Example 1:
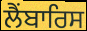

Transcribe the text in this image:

ਲੈਂਬਾਰਿਸ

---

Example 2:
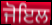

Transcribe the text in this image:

ਜੋਇਲ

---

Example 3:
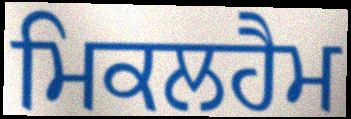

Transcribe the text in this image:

ਮਿਕਲਹੈਮ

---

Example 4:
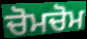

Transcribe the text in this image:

ਚੋਮਚੋਮ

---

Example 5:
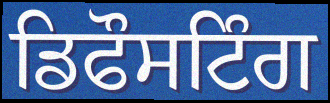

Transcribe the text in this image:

ਡਿਫੌਸਟਿੰਗ